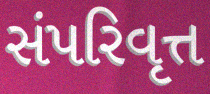
સંપરિવૃત્ત